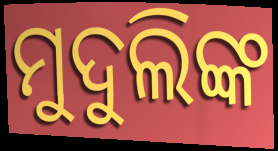
ମୁଦୁଲିଙ୍କ